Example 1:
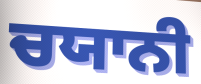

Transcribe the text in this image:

ਚਯਾਨੀ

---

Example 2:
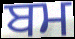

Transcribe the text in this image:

ਬਮ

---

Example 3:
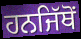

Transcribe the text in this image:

ਹਨਜਿੱਥੋਂ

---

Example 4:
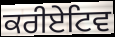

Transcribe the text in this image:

ਕਰੀਏਟਿਵ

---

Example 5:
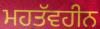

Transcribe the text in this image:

ਮਹਤੱਵਹੀਨ